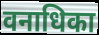
वनाधिका